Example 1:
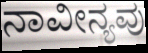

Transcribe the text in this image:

ನಾವೀನ್ಯವು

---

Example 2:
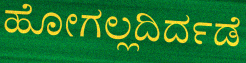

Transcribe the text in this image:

ಹೋಗಲ್ಲದಿರ್ದಡೆ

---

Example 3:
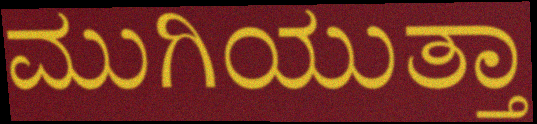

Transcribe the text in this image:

ಮುಗಿಯುತ್ತಾ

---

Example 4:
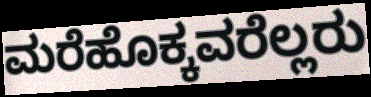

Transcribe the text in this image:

ಮರೆಹೊಕ್ಕವರೆಲ್ಲರು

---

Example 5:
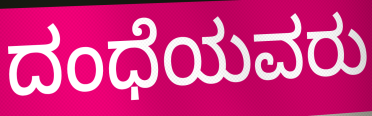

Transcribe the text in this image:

ದಂಧೆಯವರು